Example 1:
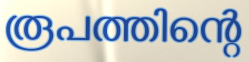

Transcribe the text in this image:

രൂപത്തിന്റെ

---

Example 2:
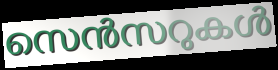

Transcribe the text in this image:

സെൻസറുകൾ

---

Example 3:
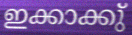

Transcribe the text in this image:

ഇക്കാക്കു്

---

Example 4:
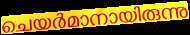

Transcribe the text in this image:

ചെയർമാനായിരുന്നു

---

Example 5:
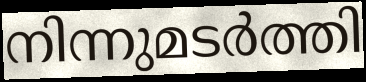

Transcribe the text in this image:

നിന്നുമടർത്തി